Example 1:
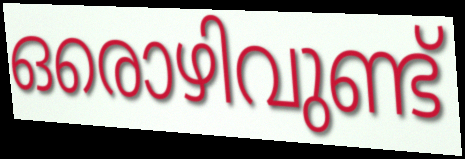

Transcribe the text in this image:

ഒരൊഴിവുണ്ട്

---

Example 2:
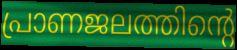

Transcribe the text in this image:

പ്രാണജലത്തിന്റെ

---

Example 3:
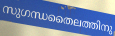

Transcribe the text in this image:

സുഗന്ധതൈലത്തിനു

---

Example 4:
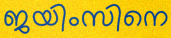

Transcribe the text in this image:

ജയിംസിനെ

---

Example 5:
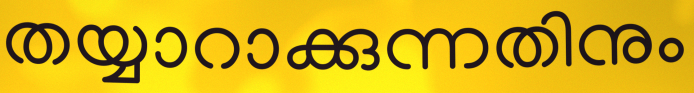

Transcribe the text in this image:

തയ്യാറാക്കുന്നതിനും